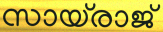
സായ്രാജ്